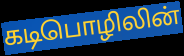
கடிபொழிலின்